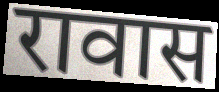
रावास